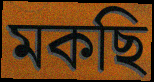
মকছি